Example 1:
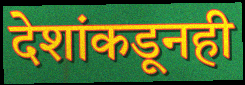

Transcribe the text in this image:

देशांकडूनही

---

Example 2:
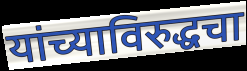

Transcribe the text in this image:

यांच्याविरुद्धचा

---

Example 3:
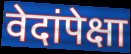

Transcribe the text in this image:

वेदांपेक्षा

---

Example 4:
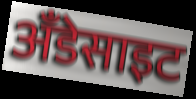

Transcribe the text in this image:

अँडेसाइट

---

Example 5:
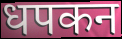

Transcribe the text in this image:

धपकन